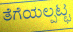
ತೆಗೆಯಲ್ಪಟ್ಟ